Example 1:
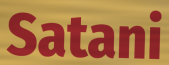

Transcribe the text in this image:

Satani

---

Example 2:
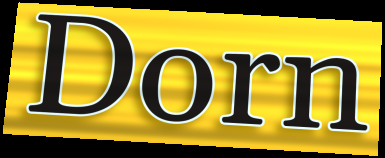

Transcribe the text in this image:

Dorn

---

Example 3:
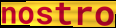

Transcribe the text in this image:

nostro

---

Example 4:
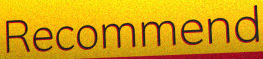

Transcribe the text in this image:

Recommend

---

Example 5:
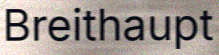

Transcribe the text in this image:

Breithaupt